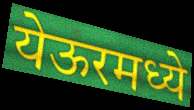
येऊरमध्ये